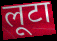
लूटा